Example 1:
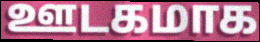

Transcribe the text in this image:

ஊடகமாக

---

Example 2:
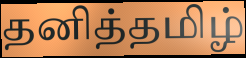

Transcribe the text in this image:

தனித்தமிழ்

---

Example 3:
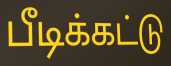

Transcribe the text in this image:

பீடிக்கட்டு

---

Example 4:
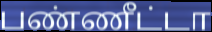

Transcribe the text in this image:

பண்ணீட்டா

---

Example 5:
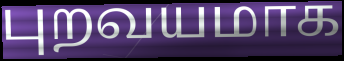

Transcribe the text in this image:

புறவயமாக